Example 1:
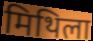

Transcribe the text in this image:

मिथिला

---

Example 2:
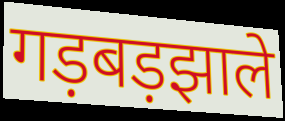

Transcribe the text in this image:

गड़बड़झाले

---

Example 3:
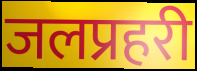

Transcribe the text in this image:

जलप्रहरी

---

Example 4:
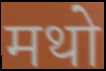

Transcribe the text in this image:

मथो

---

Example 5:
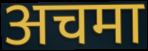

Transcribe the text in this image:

अचमा